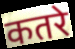
कतरे